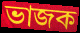
ভাজক